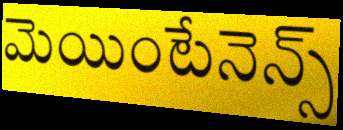
మెయింటేనెన్స్